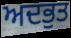
ਅਦਭੁਤ